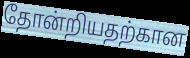
தோன்றியதற்கான